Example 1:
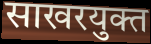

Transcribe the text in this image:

साखरयुक्त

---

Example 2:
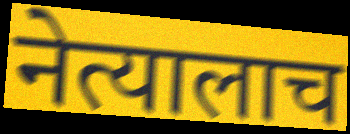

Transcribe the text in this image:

नेत्यालाच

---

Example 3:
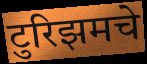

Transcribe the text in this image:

टुरिझमचे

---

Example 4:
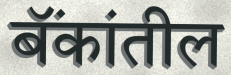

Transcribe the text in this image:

बॅंकांतील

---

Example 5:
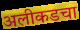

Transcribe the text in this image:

अलीकडचा